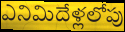
ఎనిమిదేళ్లలోపు